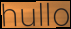
hullo